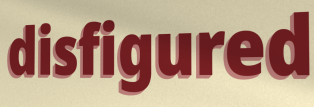
disfigured